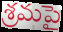
శ్రమపై